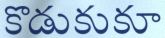
కొడుకుకూ